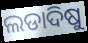
ଲଡାଦିଷୁ